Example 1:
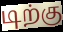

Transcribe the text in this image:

டிற்கு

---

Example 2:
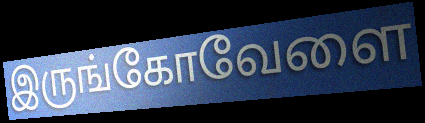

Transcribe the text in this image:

இருங்கோவேளை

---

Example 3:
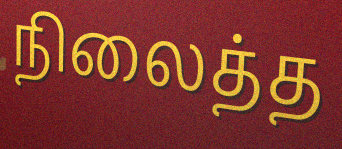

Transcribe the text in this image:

நிலைத்த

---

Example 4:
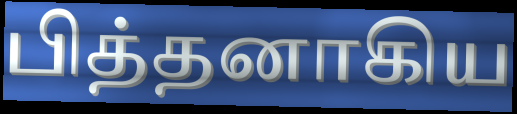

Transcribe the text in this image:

பித்தனாகிய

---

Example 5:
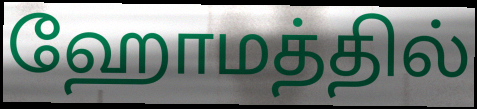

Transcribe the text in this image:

ஹோமத்தில்